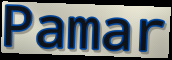
Pamar